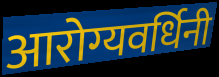
आरोग्यवर्धिनी